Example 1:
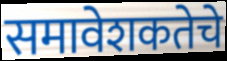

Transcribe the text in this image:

समावेशकतेचे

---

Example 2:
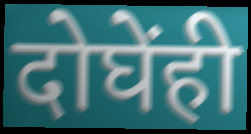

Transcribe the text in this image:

दोघेंही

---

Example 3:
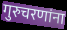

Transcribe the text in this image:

गुरुचरणांना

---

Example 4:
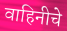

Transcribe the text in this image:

वाहिनीचे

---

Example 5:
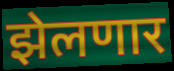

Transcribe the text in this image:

झेलणार